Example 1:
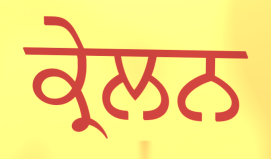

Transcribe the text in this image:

ਕ੍ਰੇਲਨ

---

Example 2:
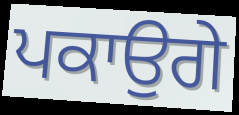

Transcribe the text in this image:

ਪਕਾਉਗੇ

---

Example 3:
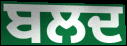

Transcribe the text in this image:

ਬਲਦ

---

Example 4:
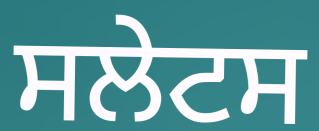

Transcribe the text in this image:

ਸਲੇਟਸ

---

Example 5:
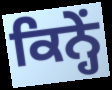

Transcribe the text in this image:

ਕਿਨ੍ਹੇਂ